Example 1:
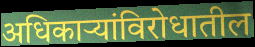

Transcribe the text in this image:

अधिकाऱ्यांविरोधातील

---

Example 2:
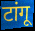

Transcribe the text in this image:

टांगू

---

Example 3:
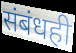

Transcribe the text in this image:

संबंधही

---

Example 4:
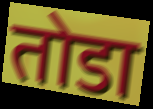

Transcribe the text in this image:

तोडा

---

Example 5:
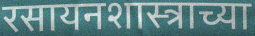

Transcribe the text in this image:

रसायनशास्त्राच्या